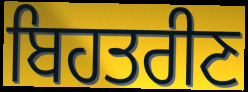
ਬਿਹਤਰੀਣ